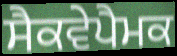
ਸੈਕਵੇਪੈਮਕ